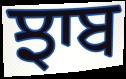
ਝਾਬ